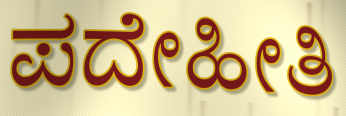
ಪದೇಹೀತಿ